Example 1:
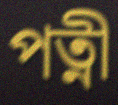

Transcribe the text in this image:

পত্নী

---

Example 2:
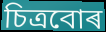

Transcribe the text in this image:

চিত্ৰবোৰ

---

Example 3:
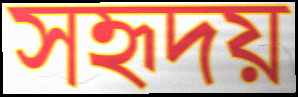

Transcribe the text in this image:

সহৃদয়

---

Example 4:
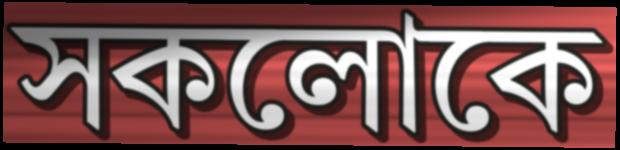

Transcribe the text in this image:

সকলোকে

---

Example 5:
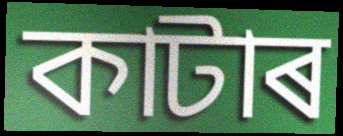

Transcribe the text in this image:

কাটাৰ